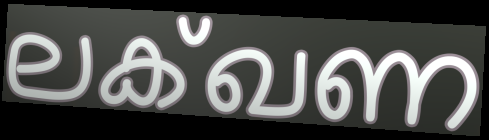
ലക്ഖണ